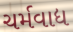
ચર્મવાદ્ય